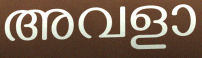
അവളാ